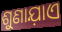
ଶୁଣାଯ଼ାଏ